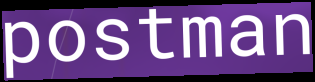
postman